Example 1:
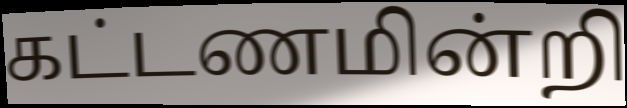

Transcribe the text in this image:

கட்டணமின்றி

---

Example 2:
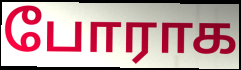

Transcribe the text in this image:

போராக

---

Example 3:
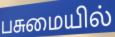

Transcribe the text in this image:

பசுமையில்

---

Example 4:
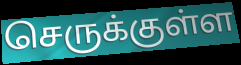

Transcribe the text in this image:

செருக்குள்ள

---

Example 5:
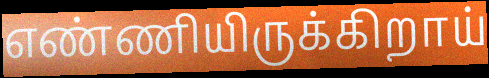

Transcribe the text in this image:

எண்ணியிருக்கிறாய்